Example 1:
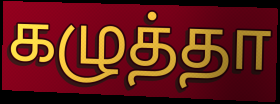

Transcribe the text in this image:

கழுத்தா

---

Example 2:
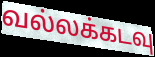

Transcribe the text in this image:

வல்லக்கடவு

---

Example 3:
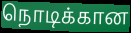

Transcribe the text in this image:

நொடிக்கான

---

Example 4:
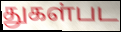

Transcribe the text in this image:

துகள்பட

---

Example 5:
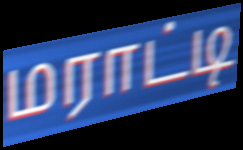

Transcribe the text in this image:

மராட்டி